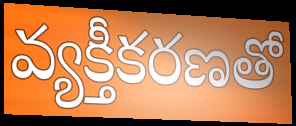
వ్యక్తీకరణతో